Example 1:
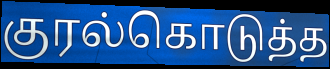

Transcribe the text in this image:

குரல்கொடுத்த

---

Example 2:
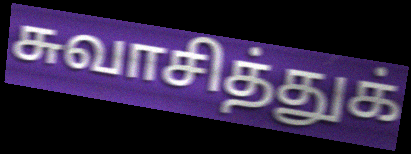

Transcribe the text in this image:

சுவாசித்துக்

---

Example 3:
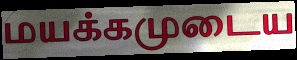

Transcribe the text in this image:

மயக்கமுடைய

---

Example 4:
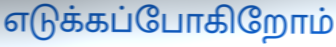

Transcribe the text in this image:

எடுக்கப்போகிறோம்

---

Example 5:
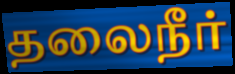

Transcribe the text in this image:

தலைநீர்